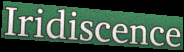
Iridiscence